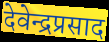
देवेन्द्रप्रसाद